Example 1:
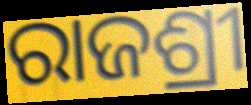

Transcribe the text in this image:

ରାଜଶ୍ରୀ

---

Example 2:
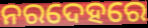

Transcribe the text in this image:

ନରଦେହରେ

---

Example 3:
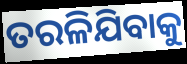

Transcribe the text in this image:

ତରଳିଯିବାକୁ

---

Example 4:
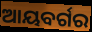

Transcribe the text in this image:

ଆୟବର୍ଗର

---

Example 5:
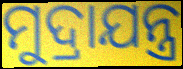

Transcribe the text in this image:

ମୁଦ୍ରାଯନ୍ତ୍ର